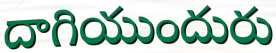
దాగియుందురు